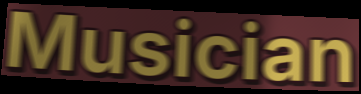
Musician